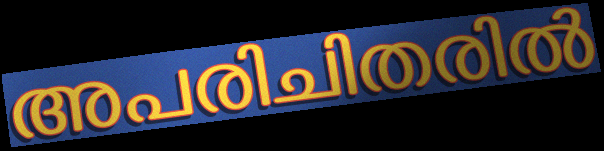
അപരിചിതരിൽ